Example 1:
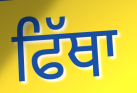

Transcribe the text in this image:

ਫਿੱਥਾ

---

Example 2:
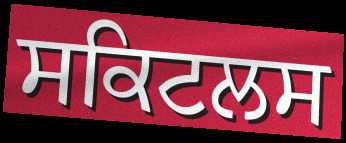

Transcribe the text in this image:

ਸਕਿਟਲਸ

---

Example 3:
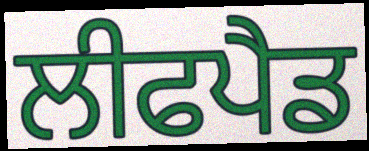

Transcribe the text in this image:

ਲੀਫਪੈਡ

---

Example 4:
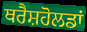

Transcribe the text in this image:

ਥਰੈਸ਼ਹੋਲਡਾਂ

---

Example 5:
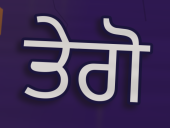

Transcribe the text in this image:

ਤੇਗੋ